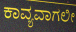
ಕಾವ್ಯವಾಗಲೀ